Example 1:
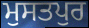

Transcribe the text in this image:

ਮੁਸਤਪੁਰ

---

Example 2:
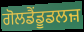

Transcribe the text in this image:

ਗੋਲਡੈਂਡੂਡਲਜ਼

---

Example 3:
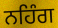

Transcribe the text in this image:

ਨਹਿੰਗ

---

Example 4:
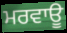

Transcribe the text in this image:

ਮਰਵਾਊ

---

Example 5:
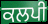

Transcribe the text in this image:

ਕਲਪੀ